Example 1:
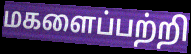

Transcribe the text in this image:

மகளைப்பற்றி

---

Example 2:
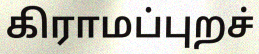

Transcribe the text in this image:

கிராமப்புறச்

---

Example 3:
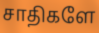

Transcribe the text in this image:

சாதிகளே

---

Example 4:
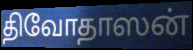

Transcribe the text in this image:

திவோதாஸன்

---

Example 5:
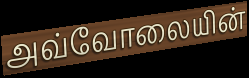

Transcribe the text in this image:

அவ்வோலையின்